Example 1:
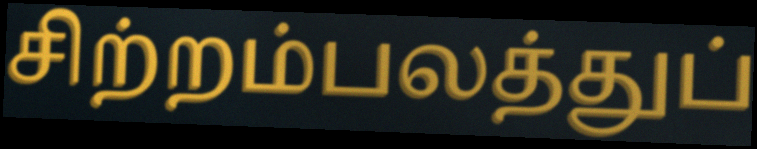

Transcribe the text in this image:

சிற்றம்பலத்துப்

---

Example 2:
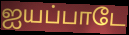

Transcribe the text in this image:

ஐயப்பாடே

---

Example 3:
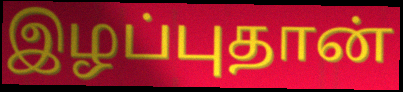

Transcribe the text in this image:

இழப்புதான்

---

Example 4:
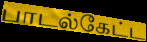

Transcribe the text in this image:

பாடல்கேட்ட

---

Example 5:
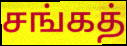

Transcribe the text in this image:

சங்கத்